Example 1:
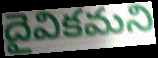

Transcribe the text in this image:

దైవికమని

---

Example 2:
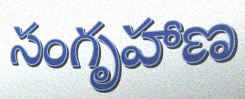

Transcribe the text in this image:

సంగృహాణ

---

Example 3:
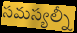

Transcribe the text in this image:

సమస్యల్నీ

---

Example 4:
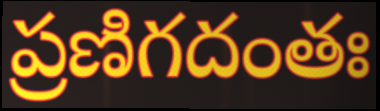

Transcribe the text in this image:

ప్రణిగదంతః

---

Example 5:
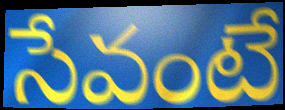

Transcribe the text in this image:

సేవంటే